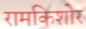
रामकिशोर